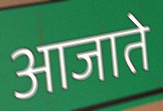
आजाते